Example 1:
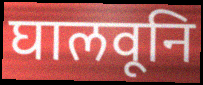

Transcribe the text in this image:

घालवूनि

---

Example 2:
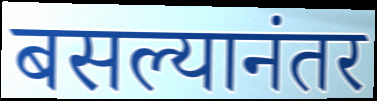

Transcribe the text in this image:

बसल्यानंतर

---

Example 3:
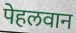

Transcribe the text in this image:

पेहलवान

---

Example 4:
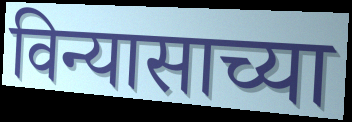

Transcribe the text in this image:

विन्यासाच्या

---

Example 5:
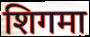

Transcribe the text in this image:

शिगमा